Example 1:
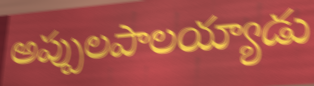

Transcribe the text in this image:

అప్పులపాలయ్యాడు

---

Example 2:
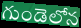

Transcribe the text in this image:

గుండెలోన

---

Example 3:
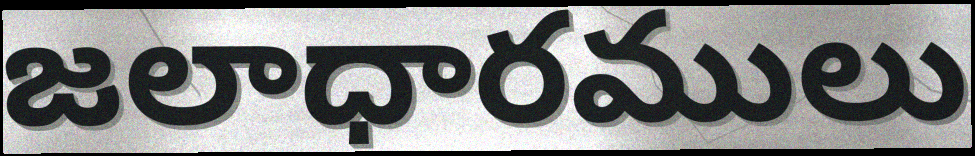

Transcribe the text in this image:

జలాధారములు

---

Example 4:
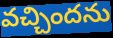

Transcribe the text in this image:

వచ్చిందను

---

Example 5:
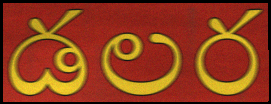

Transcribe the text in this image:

డలర